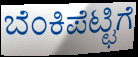
ಬೆಂಕಿಪೆಟ್ಟಿಗೆ